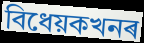
বিধেয়কখনৰ